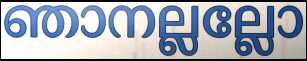
ഞാനല്ലല്ലോ